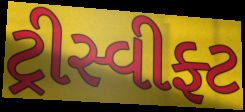
ટ્રીસ્વીફ્ટ